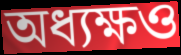
অধ্যক্ষও